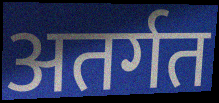
अतर्गत